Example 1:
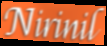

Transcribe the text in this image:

Nirinil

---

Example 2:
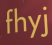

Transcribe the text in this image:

fhyj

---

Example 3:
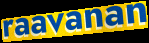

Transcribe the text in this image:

raavanan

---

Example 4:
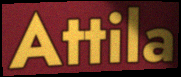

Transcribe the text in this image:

Attila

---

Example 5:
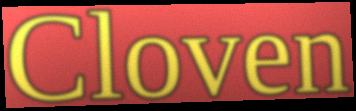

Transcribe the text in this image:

Cloven